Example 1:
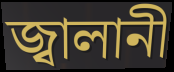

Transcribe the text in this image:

জ্বালানী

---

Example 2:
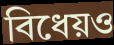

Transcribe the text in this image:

বিধেয়ও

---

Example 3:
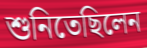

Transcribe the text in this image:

শুনিতেছিলেন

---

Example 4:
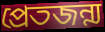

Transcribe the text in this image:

প্রেতজন্ম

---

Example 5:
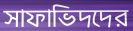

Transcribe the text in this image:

সাফাভিদদের